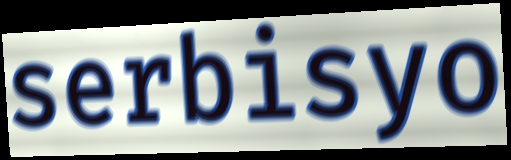
serbisyo